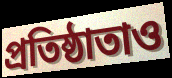
প্রতিষ্ঠাতাও